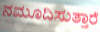
ನಮೂದಿಸುತ್ತಾರೆ